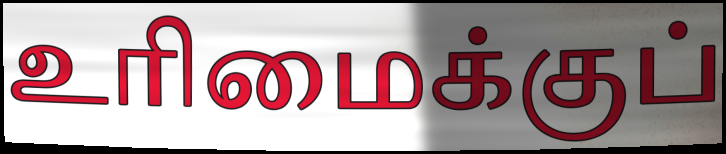
உரிமைக்குப்